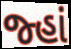
જ્હાં